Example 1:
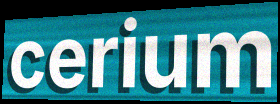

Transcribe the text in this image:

cerium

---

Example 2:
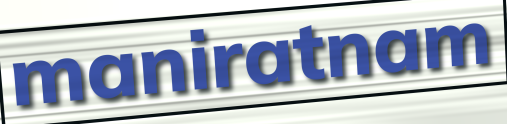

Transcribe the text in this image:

maniratnam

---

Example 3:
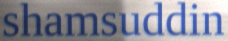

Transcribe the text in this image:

shamsuddin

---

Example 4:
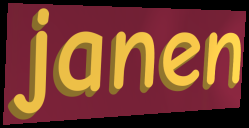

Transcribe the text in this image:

janen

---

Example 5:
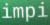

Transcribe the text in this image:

impi